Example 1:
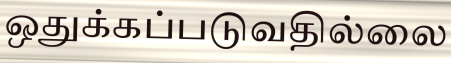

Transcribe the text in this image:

ஒதுக்கப்படுவதில்லை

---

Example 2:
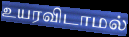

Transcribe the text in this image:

உயரவிடாமல்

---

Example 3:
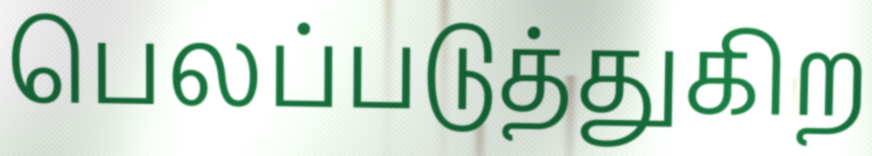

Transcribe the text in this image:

பெலப்படுத்துகிற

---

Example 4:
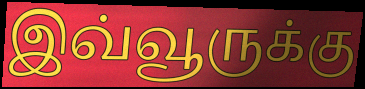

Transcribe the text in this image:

இவ்வூருக்கு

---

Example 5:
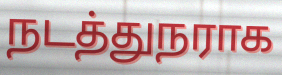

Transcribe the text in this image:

நடத்துநராக